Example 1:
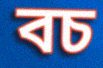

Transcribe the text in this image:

বচ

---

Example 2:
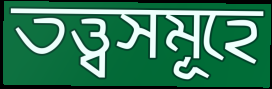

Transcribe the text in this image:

তত্ত্বসমূহে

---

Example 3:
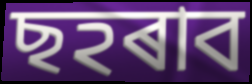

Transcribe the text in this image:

ছহৰাব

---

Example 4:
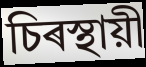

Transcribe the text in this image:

চিৰস্থায়ী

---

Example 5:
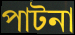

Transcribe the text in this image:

পাটনা